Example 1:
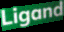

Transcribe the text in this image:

Ligand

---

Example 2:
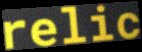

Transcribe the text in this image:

relic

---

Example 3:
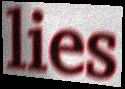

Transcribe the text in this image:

lies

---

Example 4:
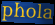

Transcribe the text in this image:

phola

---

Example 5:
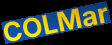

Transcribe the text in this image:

COLMar